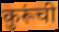
कुरूंची